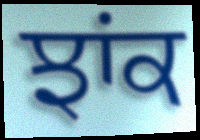
ਝਾਂਕ